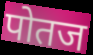
पोतज